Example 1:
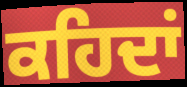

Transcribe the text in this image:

ਕਹਿਦਾਂ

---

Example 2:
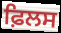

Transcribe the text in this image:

ਫ਼ਿਲਸ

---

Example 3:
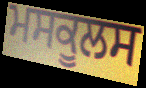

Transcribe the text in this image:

ਮਸਕੂਲਸ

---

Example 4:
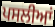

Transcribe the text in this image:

ਪਸਲੀਆਂ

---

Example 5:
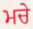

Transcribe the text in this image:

ਮਚੇ